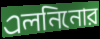
এলনিনোর